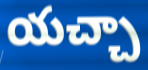
యచ్చా